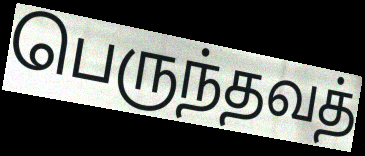
பெருந்தவத்